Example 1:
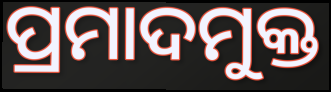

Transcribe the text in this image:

ପ୍ରମାଦମୁକ୍ତ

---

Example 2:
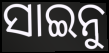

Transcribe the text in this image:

ସାଇନୁ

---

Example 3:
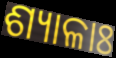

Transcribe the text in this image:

ଶ୍ୟାଳାଃ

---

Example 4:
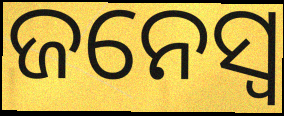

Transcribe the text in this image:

ଜନେସ୍ୱ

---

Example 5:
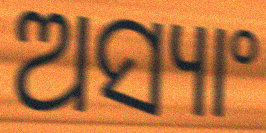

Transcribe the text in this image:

ଅସ୍ୟାଂ